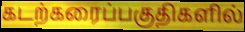
கடற்கரைப்பகுதிகளில்